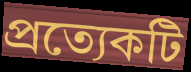
প্রত্যেকটি